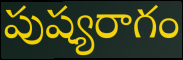
పుష్యరాగం